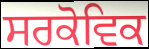
ਸਰਕੋਵਿਕ